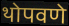
थोपवणे